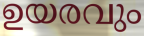
ഉയരവും